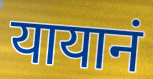
यायानं